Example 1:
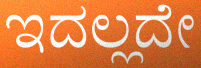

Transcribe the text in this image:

ಇದಲ್ಲದೇ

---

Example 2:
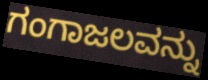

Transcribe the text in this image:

ಗಂಗಾಜಲವನ್ನು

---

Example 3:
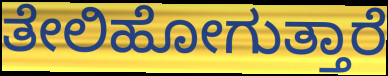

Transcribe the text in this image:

ತೇಲಿಹೋಗುತ್ತಾರೆ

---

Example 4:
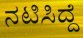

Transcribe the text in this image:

ನಟಿಸಿದ್ದೆ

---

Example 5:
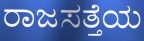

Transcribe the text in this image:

ರಾಜಸತ್ತೆಯ